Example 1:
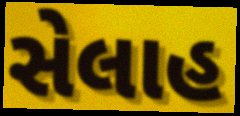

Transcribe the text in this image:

સેલાહ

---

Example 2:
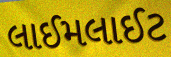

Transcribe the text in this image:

લાઈમલાઈટ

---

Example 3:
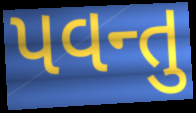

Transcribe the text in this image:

પવન્તુ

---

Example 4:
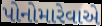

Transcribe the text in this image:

પોનોમારેવાએ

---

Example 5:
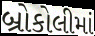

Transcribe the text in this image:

બ્રોકોલીમાં